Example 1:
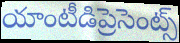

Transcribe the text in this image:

యాంటీడిప్రెసెంట్స్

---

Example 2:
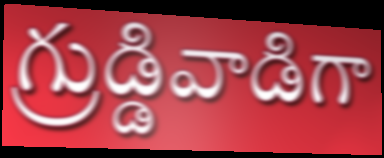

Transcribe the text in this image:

గ్రుడ్డివాడిగా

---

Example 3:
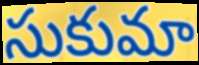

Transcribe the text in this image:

సుకుమా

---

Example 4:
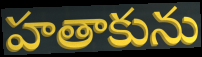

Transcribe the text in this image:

హతాకును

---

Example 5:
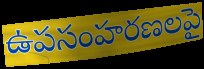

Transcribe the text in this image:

ఉపసంహరణలపై